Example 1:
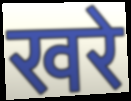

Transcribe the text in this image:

खरे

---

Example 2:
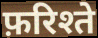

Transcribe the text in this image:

फ़रिश्ते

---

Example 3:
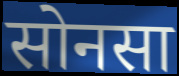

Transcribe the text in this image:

सोनसा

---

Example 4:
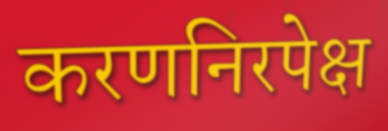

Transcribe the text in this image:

करणनिरपेक्ष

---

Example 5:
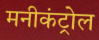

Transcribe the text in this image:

मनीकंट्रोल